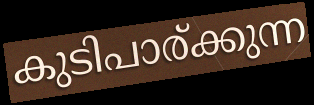
കുടിപാര്ക്കുന്ന